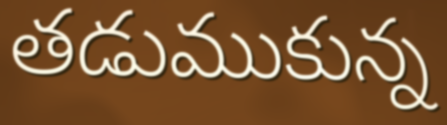
తడుముకున్న